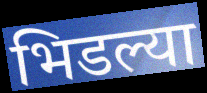
भिडल्या